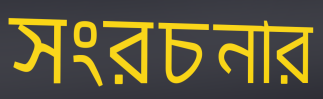
সংরচনার